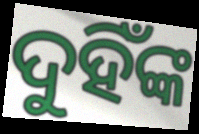
ଦୁହିଁଙ୍କ